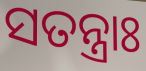
ସତନ୍ତ୍ରାଃ